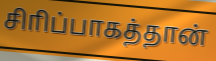
சிரிப்பாகத்தான்